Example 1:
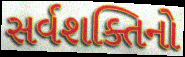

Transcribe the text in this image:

સર્વશક્તિનો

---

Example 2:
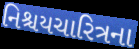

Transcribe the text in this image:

નિશ્ચયચારિત્રના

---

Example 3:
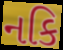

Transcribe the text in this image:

નકિ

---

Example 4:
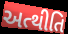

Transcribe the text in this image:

અત્થીતિ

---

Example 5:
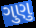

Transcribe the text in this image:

ગુણુ